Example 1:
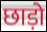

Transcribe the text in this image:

छाड़ो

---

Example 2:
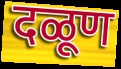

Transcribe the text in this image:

दळूण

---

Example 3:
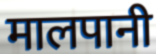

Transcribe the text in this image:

मालपानी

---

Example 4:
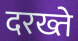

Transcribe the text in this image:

दरख्ते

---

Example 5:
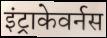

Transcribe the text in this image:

इंट्राकेवर्नस